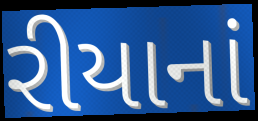
રીયાનાં